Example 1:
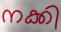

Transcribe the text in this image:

നക്കി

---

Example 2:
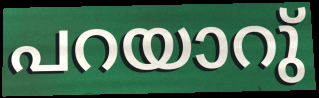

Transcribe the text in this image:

പറയാറു്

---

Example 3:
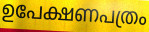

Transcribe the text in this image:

ഉപേക്ഷണപത്രം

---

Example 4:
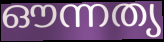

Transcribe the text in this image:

ഔന്നത്യ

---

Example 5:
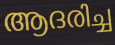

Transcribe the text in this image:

ആദരിച്ച